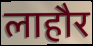
लाहौर